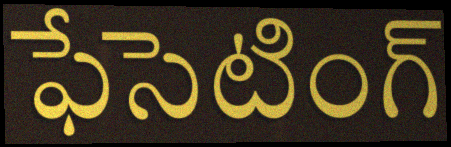
ఫేసెటింగ్